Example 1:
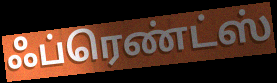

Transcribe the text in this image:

ஃப்ரெண்ட்ஸ்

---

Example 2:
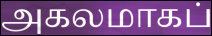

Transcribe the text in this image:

அகலமாகப்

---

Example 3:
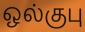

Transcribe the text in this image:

ஒல்குபு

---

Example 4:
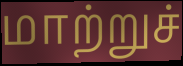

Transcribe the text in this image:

மாற்றுச்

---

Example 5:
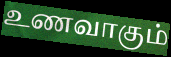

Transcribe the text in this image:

உணவாகும்